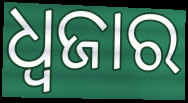
ଧ୍ୱଜାର